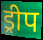
ड्रीप